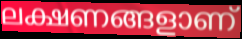
ലക്ഷണങ്ങളാണ്